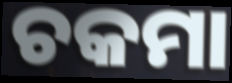
ଚକମା